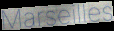
Marseilles